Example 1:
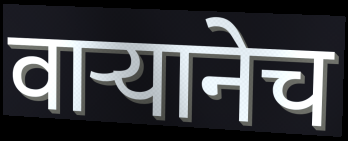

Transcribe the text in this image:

वाऱ्यानेच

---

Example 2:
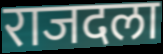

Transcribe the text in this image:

राजदला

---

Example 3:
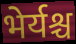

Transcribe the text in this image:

भेर्यश्च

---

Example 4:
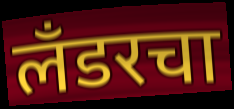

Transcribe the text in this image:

लँडरचा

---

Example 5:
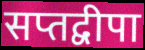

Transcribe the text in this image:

सप्तद्वीपा